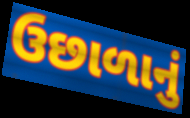
ઉછાળાનું